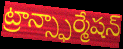
ట్రాన్స్ఫార్మేషన్